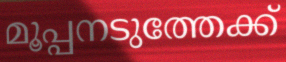
മൂപ്പനടുത്തേക്ക്